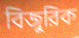
বিজুরিক